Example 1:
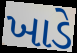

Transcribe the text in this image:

ખાડે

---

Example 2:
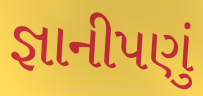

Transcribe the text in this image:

જ્ઞાનીપણું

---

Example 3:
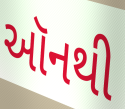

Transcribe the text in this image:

ઑનથી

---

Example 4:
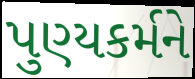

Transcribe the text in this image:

પુણ્યકર્મને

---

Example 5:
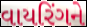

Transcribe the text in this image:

વાયરિંગને